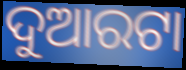
ଦୁଆରଟା